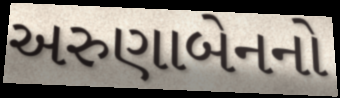
અરુણાબેનનો